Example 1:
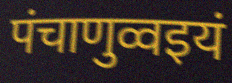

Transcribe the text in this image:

पंचाणुव्वइयं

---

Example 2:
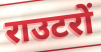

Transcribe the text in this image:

राउटरों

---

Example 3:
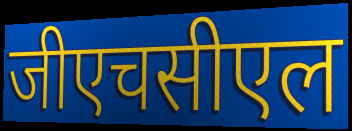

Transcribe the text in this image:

जीएचसीएल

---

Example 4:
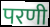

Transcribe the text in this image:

परणी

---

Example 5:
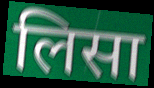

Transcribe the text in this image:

लिसा